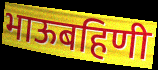
भाऊबहिणी